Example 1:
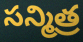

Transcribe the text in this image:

సన్మిత్ర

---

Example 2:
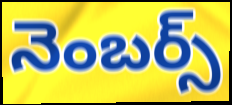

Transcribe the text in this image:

నెంబర్స్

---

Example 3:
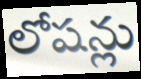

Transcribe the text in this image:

లోషన్లు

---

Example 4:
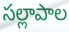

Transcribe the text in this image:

సల్లాపాల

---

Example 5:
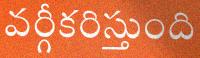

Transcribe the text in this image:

వర్గీకరిస్తుంది